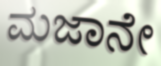
ಮಜಾನೇ